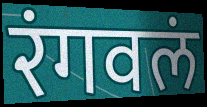
रंगवलं